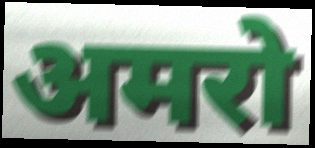
अमरो